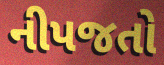
નીપજતો